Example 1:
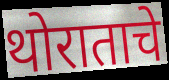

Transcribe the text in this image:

थोराताचे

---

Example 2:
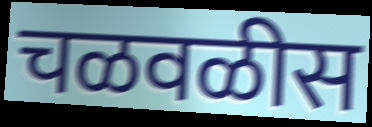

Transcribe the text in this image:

चळवळीस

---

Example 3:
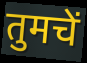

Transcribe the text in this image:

तुमचें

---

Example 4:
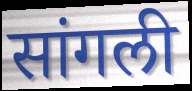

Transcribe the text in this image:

सांगली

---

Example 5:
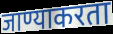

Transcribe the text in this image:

जाण्याकरता